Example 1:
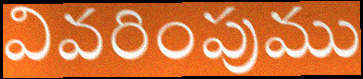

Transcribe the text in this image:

వివరింపుము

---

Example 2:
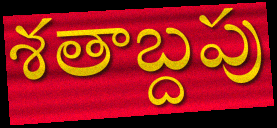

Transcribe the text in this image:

శతాబ్దపు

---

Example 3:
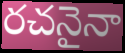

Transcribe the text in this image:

రచనైనా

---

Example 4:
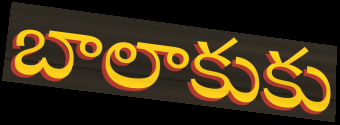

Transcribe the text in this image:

బాలాకుకు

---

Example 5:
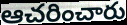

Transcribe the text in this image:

ఆచరించారు